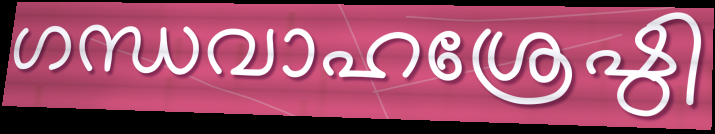
ഗന്ധവാഹശ്രേഷ്ഠി